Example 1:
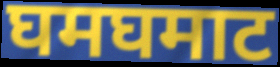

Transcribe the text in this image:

घमघमाट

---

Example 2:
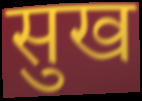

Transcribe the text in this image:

सुख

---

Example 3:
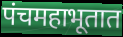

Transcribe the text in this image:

पंचमहाभूतात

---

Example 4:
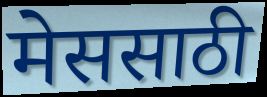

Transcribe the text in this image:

मेससाठी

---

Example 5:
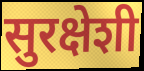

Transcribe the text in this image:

सुरक्षेशी